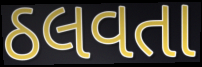
ઠલવતા